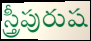
స్త్రీపురుష